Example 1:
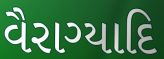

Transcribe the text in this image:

વૈરાગ્યાદિ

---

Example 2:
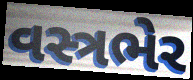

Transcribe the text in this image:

વસ્ત્રભેર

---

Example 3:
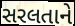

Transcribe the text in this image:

સરલતાને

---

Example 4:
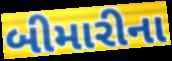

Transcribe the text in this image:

બીમારીના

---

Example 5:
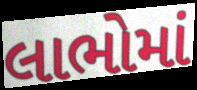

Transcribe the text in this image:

લાભોમાં